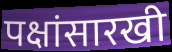
पक्षांसारखी